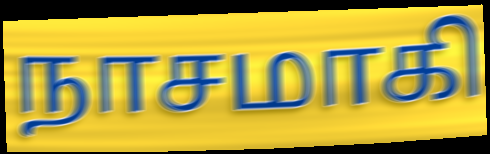
நாசமாகி